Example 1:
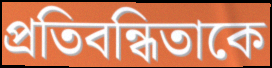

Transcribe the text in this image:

প্রতিবন্ধিতাকে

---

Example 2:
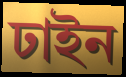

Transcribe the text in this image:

ঢাইন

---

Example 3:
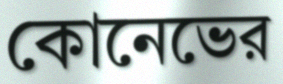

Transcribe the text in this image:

কোনেভের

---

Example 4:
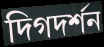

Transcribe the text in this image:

দিগদর্শন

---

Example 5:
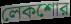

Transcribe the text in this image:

লেকশোর